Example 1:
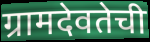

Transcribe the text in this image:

ग्रामदेवतेची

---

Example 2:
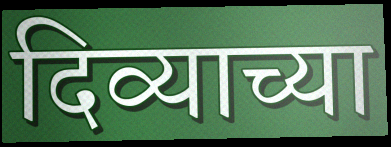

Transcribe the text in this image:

दिव्याच्या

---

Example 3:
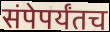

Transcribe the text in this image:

संपेपर्यंतच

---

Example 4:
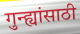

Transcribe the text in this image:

गुन्ह्यांसाठी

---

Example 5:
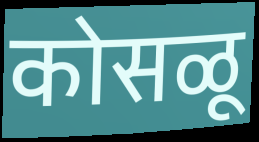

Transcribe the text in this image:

कोसळू